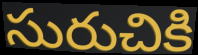
సురుచికి